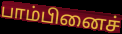
பாம்பினைச்